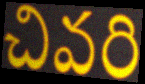
చివరి